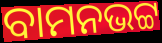
ବାମନଭଟ୍ଟ